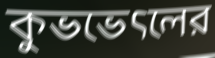
কুভভেৎলের